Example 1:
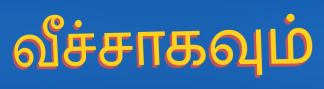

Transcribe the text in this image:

வீச்சாகவும்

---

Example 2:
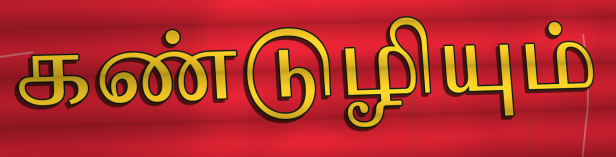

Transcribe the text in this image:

கண்டுழியும்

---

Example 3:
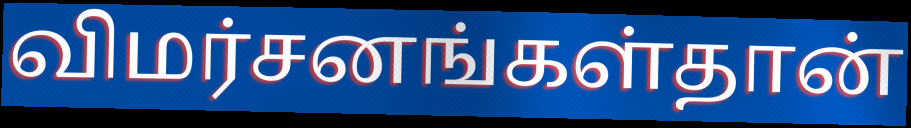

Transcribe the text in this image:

விமர்சனங்கள்தான்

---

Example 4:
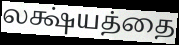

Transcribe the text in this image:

லக்ஷ்யத்தை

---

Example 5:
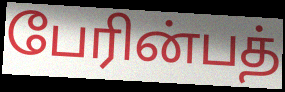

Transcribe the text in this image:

பேரின்பத்